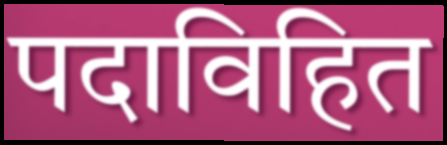
पदाविहित